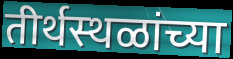
तीर्थस्थळांच्या